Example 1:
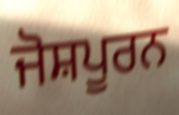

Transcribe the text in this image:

ਜੋਸ਼ਪੂਰਨ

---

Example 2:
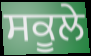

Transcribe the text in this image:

ਸਕੂਲੇ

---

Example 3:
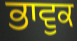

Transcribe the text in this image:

ਭਾਵੁਕ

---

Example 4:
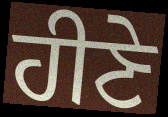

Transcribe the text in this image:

ਹੀਣੇ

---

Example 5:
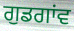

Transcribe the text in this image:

ਗੁਡਗਾਂਵ